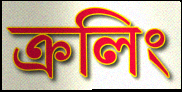
ক্রলিং